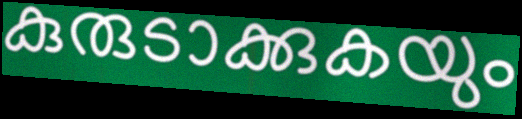
കുരുടാക്കുകയും